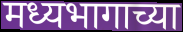
मध्यभागाच्या